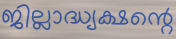
ജില്ലാദ്ധ്യക്ഷന്റെ